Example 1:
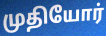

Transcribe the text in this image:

முதியோர்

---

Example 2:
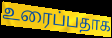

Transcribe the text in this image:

உரைப்பதாக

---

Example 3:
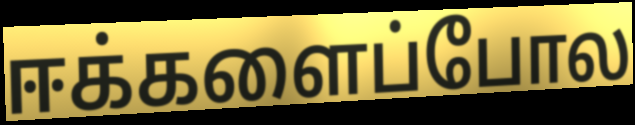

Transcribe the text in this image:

ஈக்களைப்போல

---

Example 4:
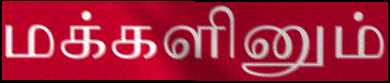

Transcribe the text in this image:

மக்களினும்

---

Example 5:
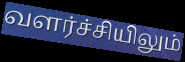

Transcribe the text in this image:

வளர்ச்சியிலும்